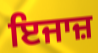
ਇਜਾਜ਼